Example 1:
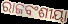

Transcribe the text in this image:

ରାଜବଂଶୀୟା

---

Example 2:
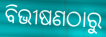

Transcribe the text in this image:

ବିଭୀଷଣଠାରୁ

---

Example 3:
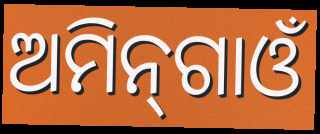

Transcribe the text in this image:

ଅମିନ୍‌ଗାଓଁ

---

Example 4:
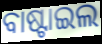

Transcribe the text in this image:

ବାଷ୍ଟାଇଲ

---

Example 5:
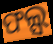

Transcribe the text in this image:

ଫଲ୍ସ